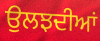
ਉਲਝਦੀਆਂ